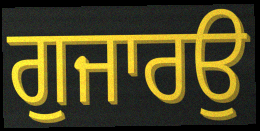
ਗੁਜਾਰਉ